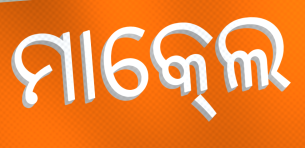
ମାକ୍‍ଲେ